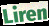
Liren